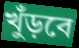
খুঁড়বে